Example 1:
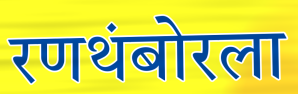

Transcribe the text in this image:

रणथंबोरला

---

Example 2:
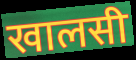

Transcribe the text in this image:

खालसी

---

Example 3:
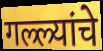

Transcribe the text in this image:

गल्ल्यांचे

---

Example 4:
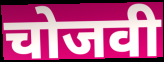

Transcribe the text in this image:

चोजवी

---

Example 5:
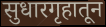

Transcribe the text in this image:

सुधारगृहातून